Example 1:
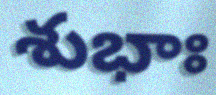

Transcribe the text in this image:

శుభాః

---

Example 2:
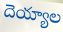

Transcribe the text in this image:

దెయ్యాల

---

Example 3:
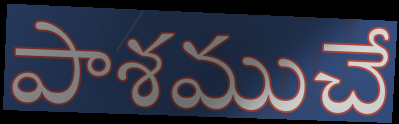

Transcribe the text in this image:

పాశముచే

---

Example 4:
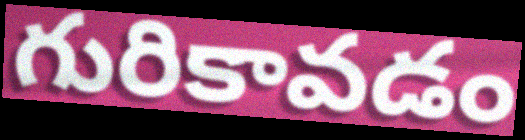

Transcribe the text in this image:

గురికావడం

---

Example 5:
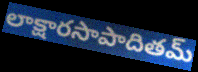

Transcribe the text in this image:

లాక్షారసాపాదితమ్